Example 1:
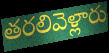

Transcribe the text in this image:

తరలివెళ్లారు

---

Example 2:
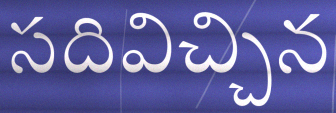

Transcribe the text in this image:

సదివిచ్చిన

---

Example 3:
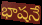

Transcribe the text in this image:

భాషనే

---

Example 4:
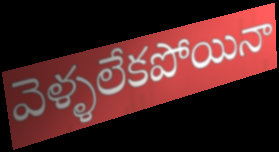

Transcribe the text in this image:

వెళ్ళలేకపోయినా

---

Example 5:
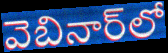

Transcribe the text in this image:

వెబినార్‌లో